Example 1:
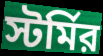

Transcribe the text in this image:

স্টর্মির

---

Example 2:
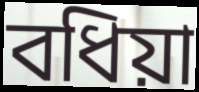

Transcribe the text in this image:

বধিয়া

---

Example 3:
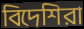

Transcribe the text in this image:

বিদেশিরা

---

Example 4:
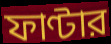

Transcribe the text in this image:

ফাণ্টার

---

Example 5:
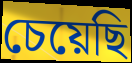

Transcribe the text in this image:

চেয়েছি